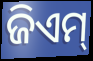
ଜିଏମ୍